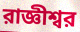
রাজ্ঞীশ্বর